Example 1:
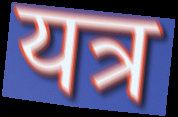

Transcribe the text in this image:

यत्र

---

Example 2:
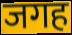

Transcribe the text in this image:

जगह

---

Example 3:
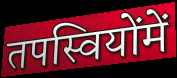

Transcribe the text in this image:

तपस्वियोंमें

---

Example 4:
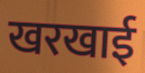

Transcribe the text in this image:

खरखाई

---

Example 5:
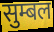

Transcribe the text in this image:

सुम्बल